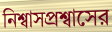
নিশ্বাসপ্রশ্বাসের